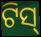
ଟିସ୍